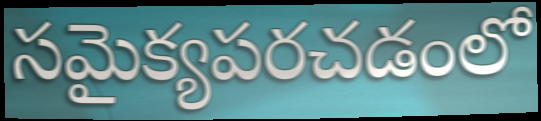
సమైక్యపరచడంలో